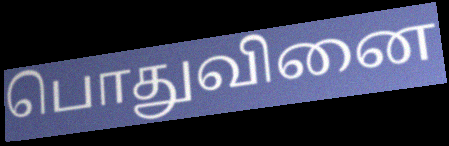
பொதுவினை